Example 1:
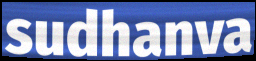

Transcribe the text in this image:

sudhanva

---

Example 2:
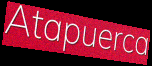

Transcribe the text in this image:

Atapuerca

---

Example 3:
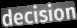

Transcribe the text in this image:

decision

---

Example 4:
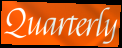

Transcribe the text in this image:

Quarterly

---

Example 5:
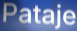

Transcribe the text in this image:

Pataje